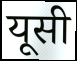
यूसी